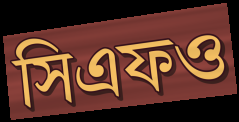
সিএফও